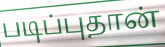
படிப்புதான்